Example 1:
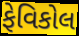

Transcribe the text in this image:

ફેવિકોલ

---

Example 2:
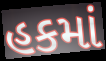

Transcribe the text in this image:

હકમાં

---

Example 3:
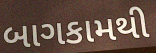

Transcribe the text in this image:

બાગકામથી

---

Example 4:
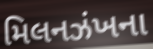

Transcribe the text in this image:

મિલનઝંખના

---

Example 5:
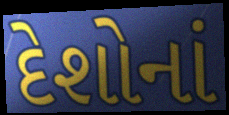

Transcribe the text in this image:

દેશોનાં